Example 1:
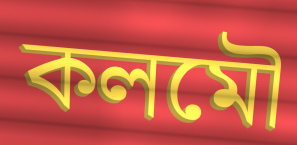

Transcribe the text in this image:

কলমৌ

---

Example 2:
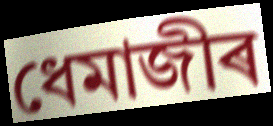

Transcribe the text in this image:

ধেমাজীৰ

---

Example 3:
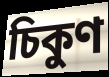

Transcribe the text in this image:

চিকুণ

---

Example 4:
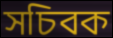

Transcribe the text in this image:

সচিবক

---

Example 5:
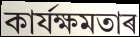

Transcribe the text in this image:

কাৰ্যক্ষমতাৰ